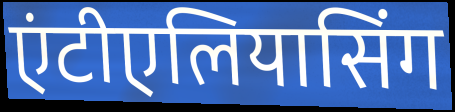
एंटीएलियासिंग